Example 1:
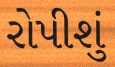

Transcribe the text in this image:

રોપીશું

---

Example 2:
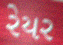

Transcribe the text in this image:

રેયર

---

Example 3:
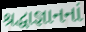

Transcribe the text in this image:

શ્રદ્ધાજ્ઞાનનાં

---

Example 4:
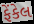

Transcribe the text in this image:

ફેંકેલ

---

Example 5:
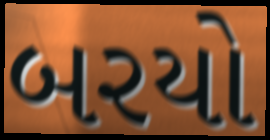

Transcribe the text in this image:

બરયો